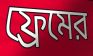
ফ্রেমের